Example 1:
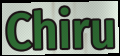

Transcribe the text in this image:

Chiru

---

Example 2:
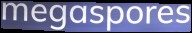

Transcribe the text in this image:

megaspores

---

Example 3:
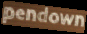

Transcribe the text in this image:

pendown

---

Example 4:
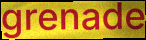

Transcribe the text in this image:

grenade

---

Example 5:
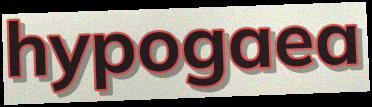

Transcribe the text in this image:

hypogaea